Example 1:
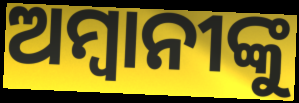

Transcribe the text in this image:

ଅମ୍ବାନୀଙ୍କୁ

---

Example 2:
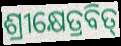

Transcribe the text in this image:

ଶ୍ରୀକ୍ଷେତ୍ରବିତ୍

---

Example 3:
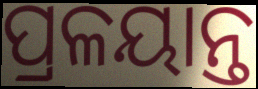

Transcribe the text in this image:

ପ୍ରଳୟାନ୍ତ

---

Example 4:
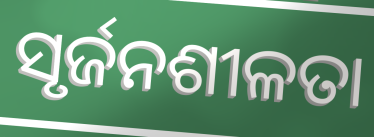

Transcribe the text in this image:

ସୃର୍ଜନଶୀଳତା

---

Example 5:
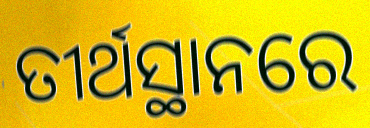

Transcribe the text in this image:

ତୀର୍ଥସ୍ଥାନରେ